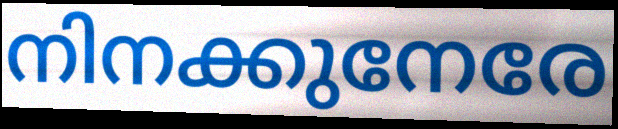
നിനക്കുനേരേ